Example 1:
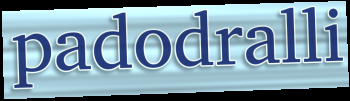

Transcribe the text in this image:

padodralli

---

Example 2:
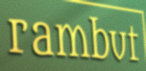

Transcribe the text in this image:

rambut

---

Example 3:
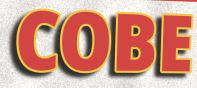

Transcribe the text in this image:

COBE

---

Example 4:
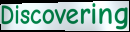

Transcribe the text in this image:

Discovering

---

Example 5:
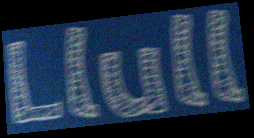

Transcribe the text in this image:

Llull